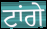
ਟਾਂਗੇ